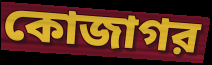
কোজাগর